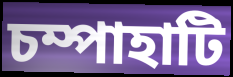
চম্পাহাটি